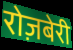
रोज़बेरी